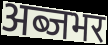
अब्जभर